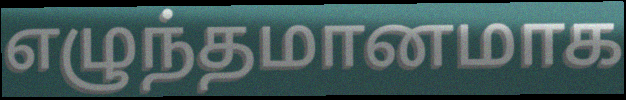
எழுந்தமானமாக